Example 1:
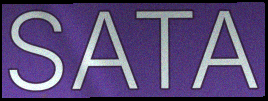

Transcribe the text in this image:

SATA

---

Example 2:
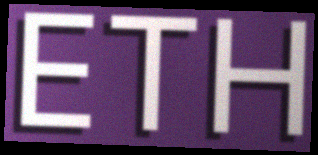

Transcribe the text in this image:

ETH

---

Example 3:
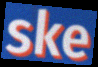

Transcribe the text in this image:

ske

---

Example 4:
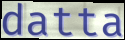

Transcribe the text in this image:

datta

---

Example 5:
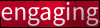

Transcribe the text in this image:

engaging